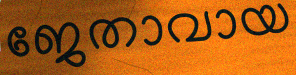
ജേതാവായ